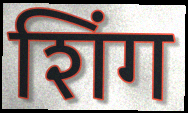
शिंग